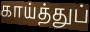
காய்த்துப்